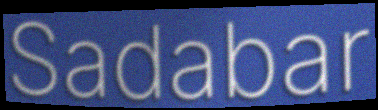
Sadabar